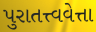
પુરાતત્ત્વવેત્તા